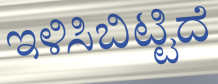
ಇಳಿಸಿಬಿಟ್ಟಿದೆ